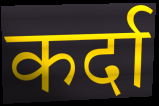
कर्दा